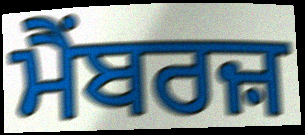
ਮੈਂਬਰਜ਼